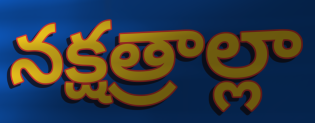
నక్షత్రాల్లా